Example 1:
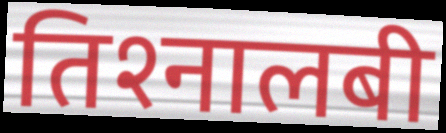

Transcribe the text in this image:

तिश्नालबी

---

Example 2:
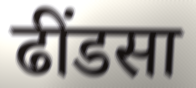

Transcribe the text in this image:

ढींडसा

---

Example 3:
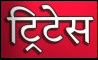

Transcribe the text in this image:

ट्रिटेस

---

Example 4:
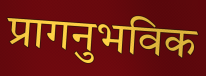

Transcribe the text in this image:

प्रागनुभविक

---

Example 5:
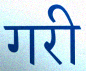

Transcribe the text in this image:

गरी